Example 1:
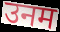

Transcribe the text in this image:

उनम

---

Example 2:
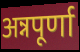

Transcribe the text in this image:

अन्नपूर्णा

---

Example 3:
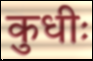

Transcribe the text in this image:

कुधीः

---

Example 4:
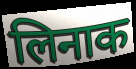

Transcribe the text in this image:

लिनाक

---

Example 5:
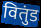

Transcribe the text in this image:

वितुंड